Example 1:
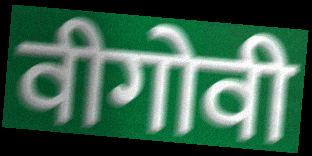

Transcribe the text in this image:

वीगोवी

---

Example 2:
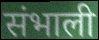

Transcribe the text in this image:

संभाली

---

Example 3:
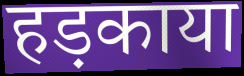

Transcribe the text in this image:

हड़काया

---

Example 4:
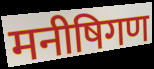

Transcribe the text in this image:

मनीषिगण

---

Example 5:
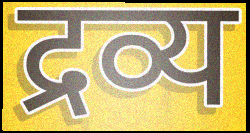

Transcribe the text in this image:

द्रव्य